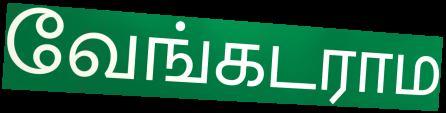
வேங்கடராம